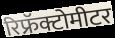
रिफ्रॅक्टोमीटर